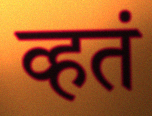
व्हतं